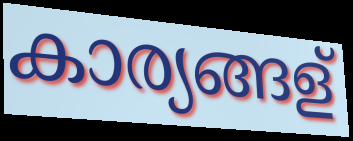
കാര്യങ്ങള്